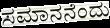
ಸಮಾನನೆಂದು